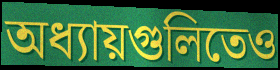
অধ্যায়গুলিতেও